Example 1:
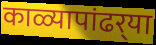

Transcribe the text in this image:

काळ्यापांढर्‍या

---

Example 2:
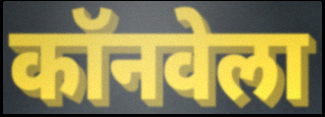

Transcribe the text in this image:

कॉनवेला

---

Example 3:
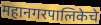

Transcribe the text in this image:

महानगरपालिकेचे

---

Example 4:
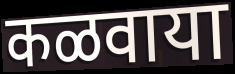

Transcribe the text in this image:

कळवाया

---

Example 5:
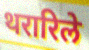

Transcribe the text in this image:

थरारिले